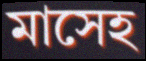
মাসেহ